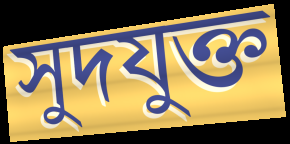
সুদযুক্ত